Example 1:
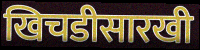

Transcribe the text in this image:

खिचडीसारखी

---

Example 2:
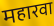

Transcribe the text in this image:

महारवा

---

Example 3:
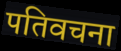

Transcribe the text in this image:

पतिवचना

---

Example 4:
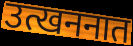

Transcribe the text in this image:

उत्खननात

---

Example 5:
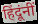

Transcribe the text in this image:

हिंदूंनीं